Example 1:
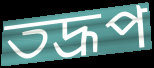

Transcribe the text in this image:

তদ্রূপ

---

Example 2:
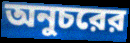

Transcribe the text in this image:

অনুচরের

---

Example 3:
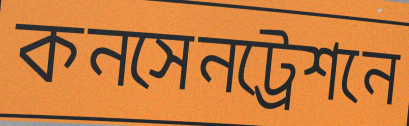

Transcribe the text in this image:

কনসেনট্রেশনে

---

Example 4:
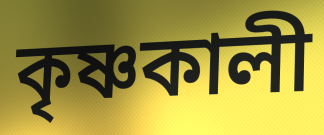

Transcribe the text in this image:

কৃষ্ণকালী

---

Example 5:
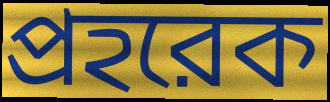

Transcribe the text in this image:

প্রহরেক